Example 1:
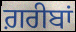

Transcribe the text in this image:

ਗ਼ਰੀਬਾਂ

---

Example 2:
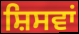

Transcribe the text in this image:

ਸ਼ਿਸਵਾਂ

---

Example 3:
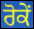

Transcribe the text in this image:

ਰੋਕੇਂ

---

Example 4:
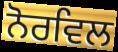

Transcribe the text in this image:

ਨੋਰਵਿਲ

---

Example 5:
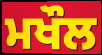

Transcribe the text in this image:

ਮਖੌਲ